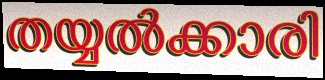
തയ്യൽക്കാരി